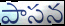
పాసన